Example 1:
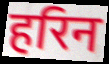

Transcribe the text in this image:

हरिन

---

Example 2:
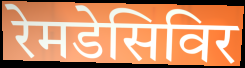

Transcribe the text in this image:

रेमडेसिविर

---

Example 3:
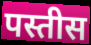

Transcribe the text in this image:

पस्तीस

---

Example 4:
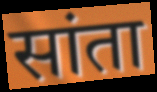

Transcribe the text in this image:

सांता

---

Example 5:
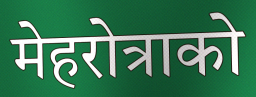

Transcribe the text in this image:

मेहरोत्राको